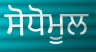
ਸੋਧੋਮੂਲ